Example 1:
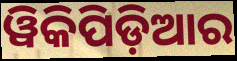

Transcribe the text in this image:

ୱିକିପିଡ଼ିଆର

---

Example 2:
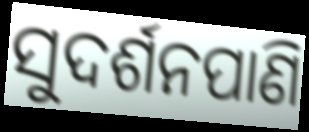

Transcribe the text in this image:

ସୁଦର୍ଶନପାଣି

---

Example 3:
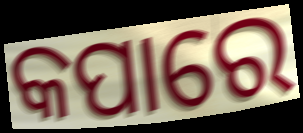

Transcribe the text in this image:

କପାରେ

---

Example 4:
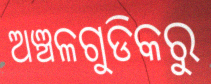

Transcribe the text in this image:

ଅଞ୍ଚଳଗୁଡିକରୁ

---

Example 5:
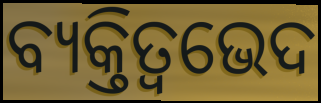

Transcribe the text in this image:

ବ୍ୟକ୍ତିତ୍ୱଭେଦ